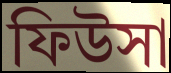
ফিউসা